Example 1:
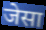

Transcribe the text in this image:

जेसा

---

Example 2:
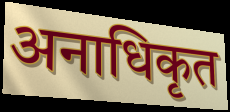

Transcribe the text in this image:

अनाधिकृत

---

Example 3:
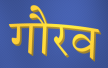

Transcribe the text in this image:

गौरव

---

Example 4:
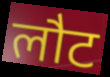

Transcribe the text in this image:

लौट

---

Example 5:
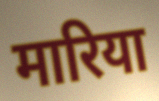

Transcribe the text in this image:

मारिया